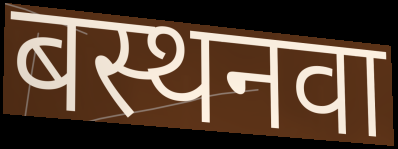
बस्थनवा